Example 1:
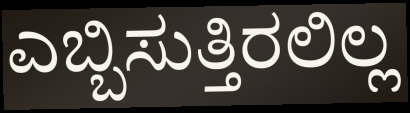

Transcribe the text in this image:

ಎಬ್ಬಿಸುತ್ತಿರಲಿಲ್ಲ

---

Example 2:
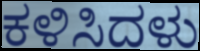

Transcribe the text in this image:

ಕಳಿಸಿದಳು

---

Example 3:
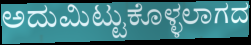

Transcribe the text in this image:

ಅದುಮಿಟ್ಟುಕೊಳ್ಳಲಾಗದ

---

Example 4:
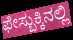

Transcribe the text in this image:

ಫೇಸ್ಬುಕ್ಕಿನಲ್ಲಿ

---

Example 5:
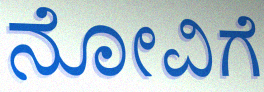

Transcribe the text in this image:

ನೋವಿಗೆ